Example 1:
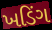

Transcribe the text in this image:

ખડિંગ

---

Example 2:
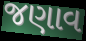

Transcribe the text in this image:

જણાવ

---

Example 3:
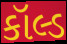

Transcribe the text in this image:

કૉલ્ડ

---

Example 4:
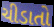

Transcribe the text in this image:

ચીડાતો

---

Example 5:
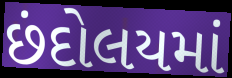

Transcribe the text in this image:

છંદોલયમાં